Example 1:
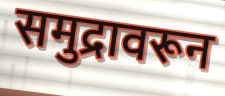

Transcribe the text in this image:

समुद्रावरून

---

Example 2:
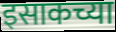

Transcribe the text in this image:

इसाकच्या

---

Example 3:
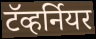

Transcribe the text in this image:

टॅव्हर्नियर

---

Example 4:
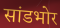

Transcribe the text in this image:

सांडभोर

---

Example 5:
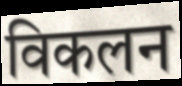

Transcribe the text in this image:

विकलन